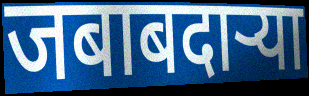
जबाबदाऱ्या